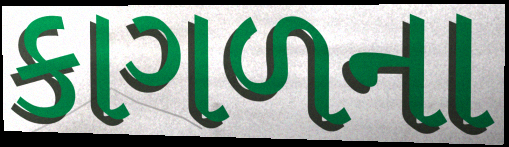
કાગળના